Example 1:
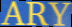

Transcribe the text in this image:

ARY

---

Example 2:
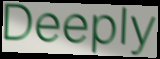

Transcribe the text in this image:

Deeply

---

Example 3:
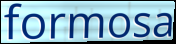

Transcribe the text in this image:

formosa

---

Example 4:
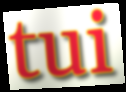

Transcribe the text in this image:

tui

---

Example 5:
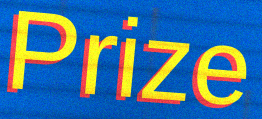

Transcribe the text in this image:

Prize